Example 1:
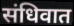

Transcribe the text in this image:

संधिवात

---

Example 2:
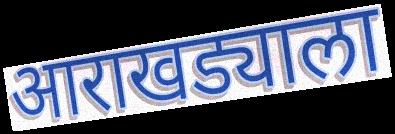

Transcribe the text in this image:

आराखड्याला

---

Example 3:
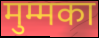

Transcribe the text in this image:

मुम्मका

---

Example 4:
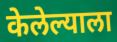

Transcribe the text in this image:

केलेल्याला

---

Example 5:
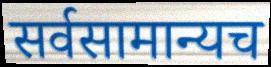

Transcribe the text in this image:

सर्वसामान्यच